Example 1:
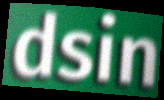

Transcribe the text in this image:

dsin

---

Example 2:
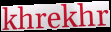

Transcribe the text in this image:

khrekhr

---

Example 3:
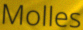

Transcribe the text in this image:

Molles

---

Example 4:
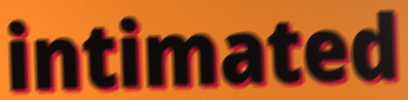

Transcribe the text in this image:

intimated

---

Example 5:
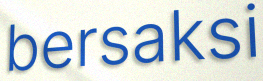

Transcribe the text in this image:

bersaksi